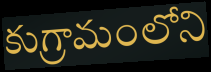
కుగ్రామంలోని